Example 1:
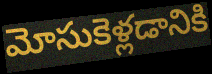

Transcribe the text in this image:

మోసుకెళ్లడానికి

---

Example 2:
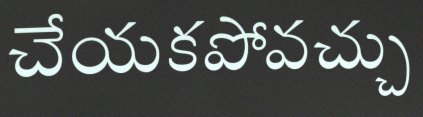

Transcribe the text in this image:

చేయకపోవచ్చు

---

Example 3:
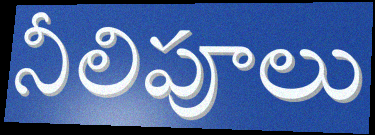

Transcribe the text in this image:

నీలిపూలు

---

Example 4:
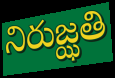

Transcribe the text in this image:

నిరుజ్ఝతి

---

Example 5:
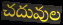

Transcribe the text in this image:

చదువుల